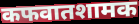
कफवातशामक